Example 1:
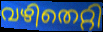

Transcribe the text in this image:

വഴിതെറ്റി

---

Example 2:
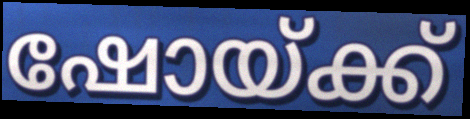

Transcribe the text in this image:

ഷോയ്ക്ക്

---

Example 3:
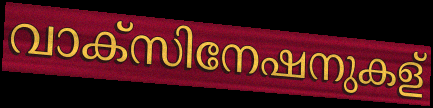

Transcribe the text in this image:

വാക്സിനേഷനുകള്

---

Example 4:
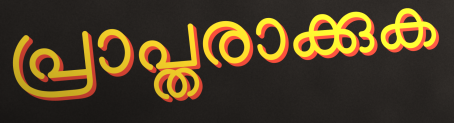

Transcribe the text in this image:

പ്രാപ്തരാക്കുക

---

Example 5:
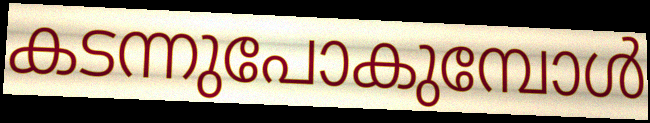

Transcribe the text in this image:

കടന്നുപോകുമ്പോൾ